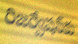
రిజర్వేషన్‌కు